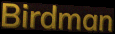
Birdman